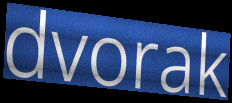
dvorak